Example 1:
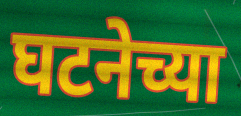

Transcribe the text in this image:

घटनेच्या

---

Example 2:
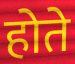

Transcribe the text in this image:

होते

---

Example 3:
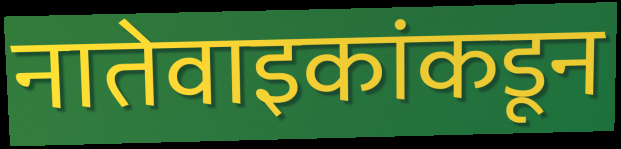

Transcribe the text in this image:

नातेवाइकांकडून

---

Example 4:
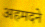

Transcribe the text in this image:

अहमदने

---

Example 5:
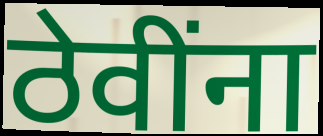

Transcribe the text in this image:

ठेवींना